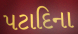
પટાદિના